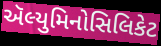
ઍલ્યુમિનોસિલિકેટ